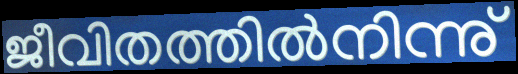
ജീവിതത്തിൽനിന്നു്